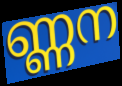
ണ്ണന